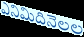
ఎనిమిదినెలల